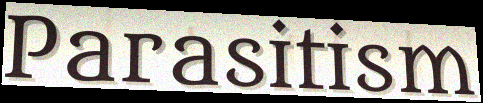
Parasitism